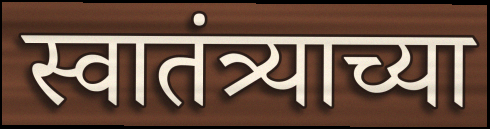
स्वातंत्र्याच्या